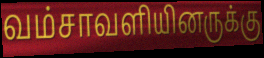
வம்சாவளியினருக்கு